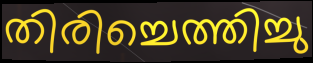
തിരിച്ചെത്തിച്ചു